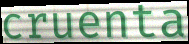
cruenta